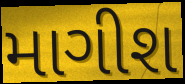
માગીશ